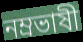
নম্রভাষী